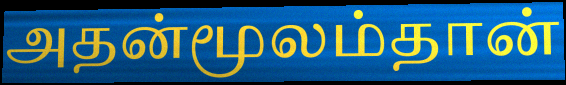
அதன்மூலம்தான்